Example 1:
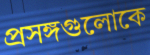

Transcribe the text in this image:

প্রসঙ্গগুলোকে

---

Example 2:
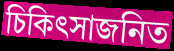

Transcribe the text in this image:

চিকিৎসাজনিত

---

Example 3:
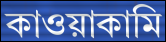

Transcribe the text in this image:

কাওয়াকামি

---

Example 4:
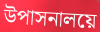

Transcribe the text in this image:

উপাসনালয়ে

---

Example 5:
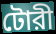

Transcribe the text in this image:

টোরী